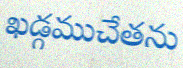
ఖడ్గముచేతను